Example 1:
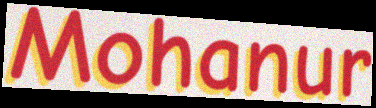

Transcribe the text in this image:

Mohanur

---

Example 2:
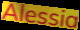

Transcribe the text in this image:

Alessia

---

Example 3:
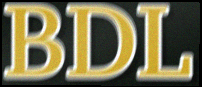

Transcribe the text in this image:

BDL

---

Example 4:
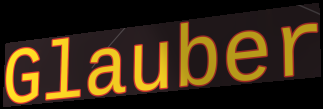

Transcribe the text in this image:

Glauber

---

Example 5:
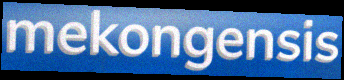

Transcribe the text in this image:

mekongensis